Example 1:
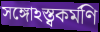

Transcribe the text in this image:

সঙ্গোঽস্ত্বকর্মণি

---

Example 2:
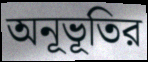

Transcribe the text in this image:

অনূভূতির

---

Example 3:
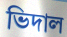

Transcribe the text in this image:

ভিদাল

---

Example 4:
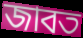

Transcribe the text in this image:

জাবত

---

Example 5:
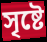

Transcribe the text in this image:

সৃষ্টে